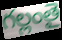
గల్లంతై